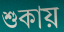
শুকায়